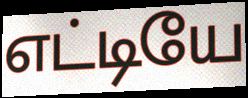
எட்டியே